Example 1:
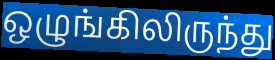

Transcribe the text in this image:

ஒழுங்கிலிருந்து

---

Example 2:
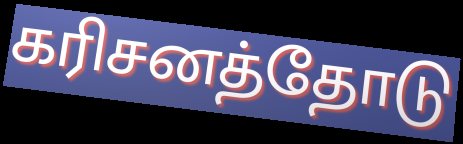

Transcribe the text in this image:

கரிசனத்தோடு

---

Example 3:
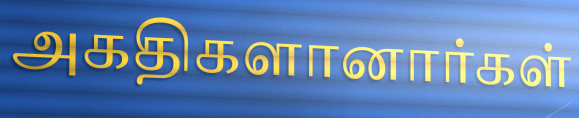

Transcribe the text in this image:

அகதிகளானார்கள்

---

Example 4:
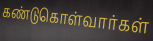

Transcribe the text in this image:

கண்டுகொள்வார்கள்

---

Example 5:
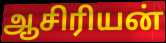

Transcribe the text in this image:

ஆசிரியன்